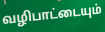
வழிபாட்டையும்